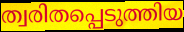
ത്വരിതപ്പെടുത്തിയ